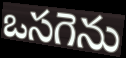
ఒసగెను